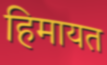
हिमायत